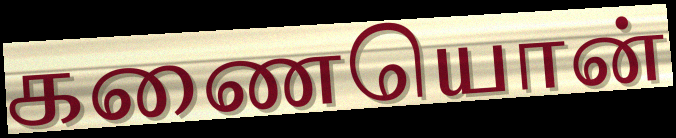
கணையொன்